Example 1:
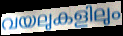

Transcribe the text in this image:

വയലുകളിലും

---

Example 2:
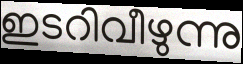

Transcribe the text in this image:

ഇടറിവീഴുന്നു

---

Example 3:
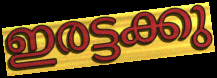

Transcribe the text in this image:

ഇരട്ടക്കു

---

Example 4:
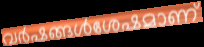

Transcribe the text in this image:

വർഷങ്ങൾശേഷമാണ്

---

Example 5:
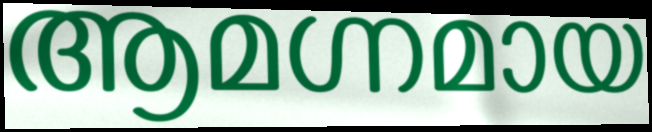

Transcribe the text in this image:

ആമഗ്നമായ